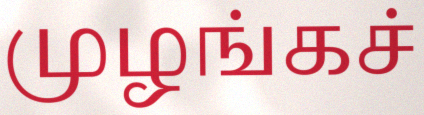
முழங்கச்